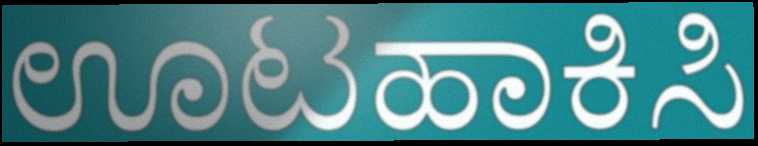
ಊಟಹಾಕಿಸಿ